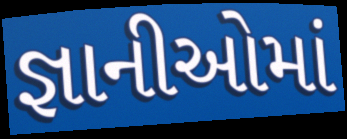
જ્ઞાનીઓમાં